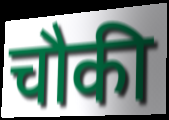
चौकी